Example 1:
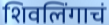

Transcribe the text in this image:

शिवलिंगाचं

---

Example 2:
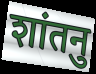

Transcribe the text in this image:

शांतनु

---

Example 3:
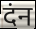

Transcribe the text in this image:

दंन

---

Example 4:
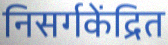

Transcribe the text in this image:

निसर्गकेंद्रित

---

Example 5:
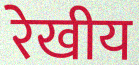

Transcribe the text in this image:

रेखीय